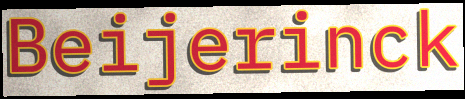
Beijerinck